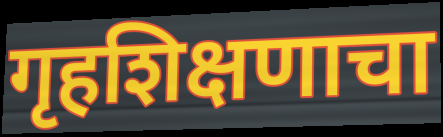
गृहशिक्षणाचा